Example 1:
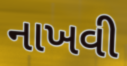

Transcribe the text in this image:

નાખવી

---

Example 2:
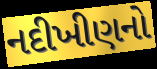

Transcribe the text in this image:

નદીખીણનો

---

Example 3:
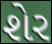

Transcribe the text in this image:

શેર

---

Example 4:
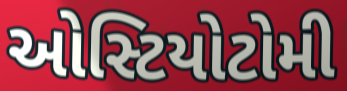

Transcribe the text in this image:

ઓસ્ટિયોટોમી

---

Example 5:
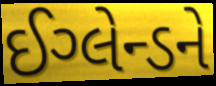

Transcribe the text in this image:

ઈગ્લેન્ડને